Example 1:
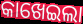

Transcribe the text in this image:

କାଖେଇଲା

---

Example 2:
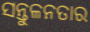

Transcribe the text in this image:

ସନ୍ତୁଳନତାର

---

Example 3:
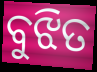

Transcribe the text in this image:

ବୁଝିତ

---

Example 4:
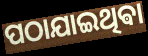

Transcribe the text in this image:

ପଠାଯାଇଥିଵା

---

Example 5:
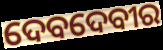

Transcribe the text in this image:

ଦେବଦେବୀର